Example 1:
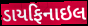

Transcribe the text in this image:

ડાયફિનાઇલ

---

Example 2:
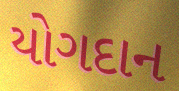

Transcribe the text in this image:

યોગદાન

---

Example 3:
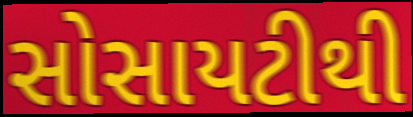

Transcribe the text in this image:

સોસાયટીથી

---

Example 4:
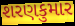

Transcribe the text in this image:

શરણકુમાર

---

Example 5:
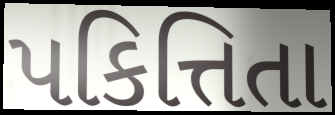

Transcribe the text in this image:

પકિત્તિતા